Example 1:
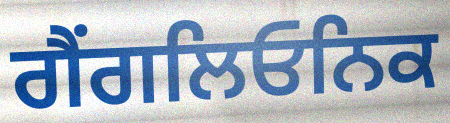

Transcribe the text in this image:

ਗੈਂਗਲਿਓਨਿਕ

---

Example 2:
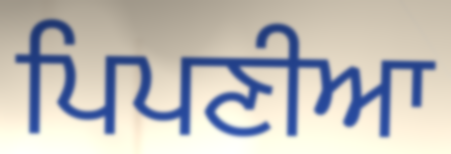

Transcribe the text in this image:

ਪਿਪਣੀਆ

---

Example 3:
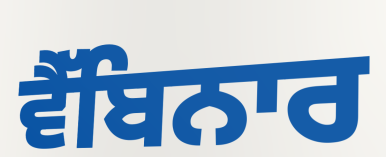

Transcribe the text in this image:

ਵੈੱਬਿਨਾਰ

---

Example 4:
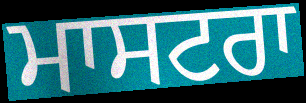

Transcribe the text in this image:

ਮਾਸਟਰਾ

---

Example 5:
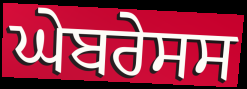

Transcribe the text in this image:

ਘੇਬਰੇਸਸ